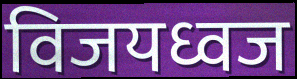
विजयध्वज